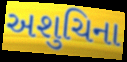
અશુચિના